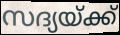
സദ്യയ്ക്ക്